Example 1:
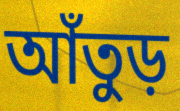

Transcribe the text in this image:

আঁতুড়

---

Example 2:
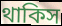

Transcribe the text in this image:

থাকিস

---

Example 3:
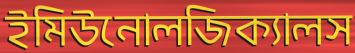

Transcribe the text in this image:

ইমিউনোলজিক্যালস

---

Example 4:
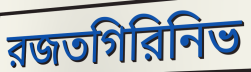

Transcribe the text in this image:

রজতগিরিনিভ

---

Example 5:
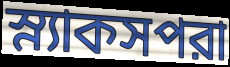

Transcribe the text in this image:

স্ন্যাকসপরা